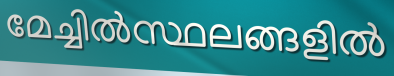
മേച്ചിൽസ്ഥലങ്ങളിൽ